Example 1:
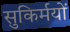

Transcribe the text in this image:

सुकिर्मयों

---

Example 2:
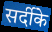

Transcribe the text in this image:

सर्दीके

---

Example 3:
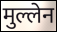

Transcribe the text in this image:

मुल्लेन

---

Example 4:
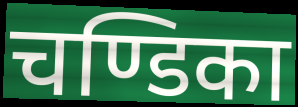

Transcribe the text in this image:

चण्डिका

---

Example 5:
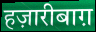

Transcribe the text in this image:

हज़ारीबाग़